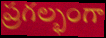
ప్రగల్భంగా